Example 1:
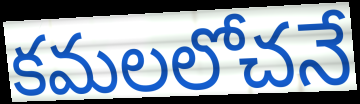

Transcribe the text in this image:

కమలలోచనే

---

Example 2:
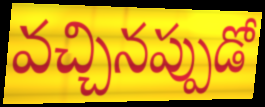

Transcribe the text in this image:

వచ్చినప్పుడో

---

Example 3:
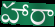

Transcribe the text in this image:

హారా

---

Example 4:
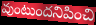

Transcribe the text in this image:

వుంటుందనిపించి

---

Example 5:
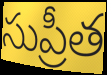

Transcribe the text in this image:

సుప్రీత